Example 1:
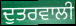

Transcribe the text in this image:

ਦੁਤਰਵਾਲੀ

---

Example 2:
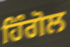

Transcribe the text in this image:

ਹਿੰਗੋਲ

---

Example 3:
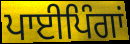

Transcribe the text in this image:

ਪਾਈਪਿੰਗਾਂ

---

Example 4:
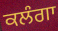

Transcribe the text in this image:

ਕਲੰਗਾ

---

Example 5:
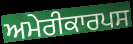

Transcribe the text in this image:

ਅਮੇਰੀਕਾਰਪਸ